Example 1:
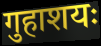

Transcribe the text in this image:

गुहाशयः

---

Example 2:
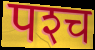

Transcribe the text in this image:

पश्च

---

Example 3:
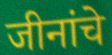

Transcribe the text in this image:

जीनांचे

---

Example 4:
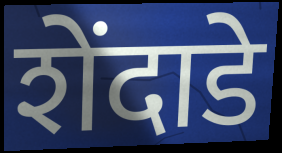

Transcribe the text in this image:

शेंदाडे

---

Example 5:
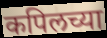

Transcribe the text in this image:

कपिलच्या